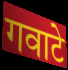
गवाटे